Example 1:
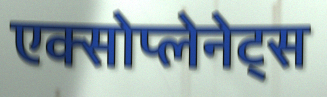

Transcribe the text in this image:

एक्सोप्लेनेट्स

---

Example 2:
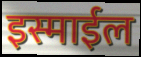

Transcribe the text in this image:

इस्माईल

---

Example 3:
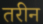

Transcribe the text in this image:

तरीन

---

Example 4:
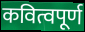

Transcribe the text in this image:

कवित्वपूर्ण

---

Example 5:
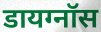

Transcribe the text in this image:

डायग्नॉस